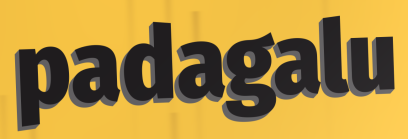
padagalu